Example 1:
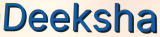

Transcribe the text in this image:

Deeksha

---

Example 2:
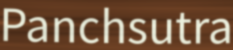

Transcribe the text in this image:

Panchsutra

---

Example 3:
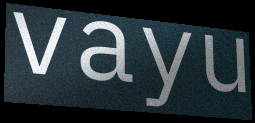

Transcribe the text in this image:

vayu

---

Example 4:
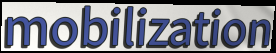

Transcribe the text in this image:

mobilization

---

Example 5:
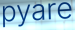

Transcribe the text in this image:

pyare